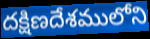
దక్షిణదేశములోని